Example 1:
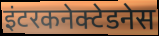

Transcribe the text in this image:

इंटरकनेक्टेडनेस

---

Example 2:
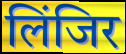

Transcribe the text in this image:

लिंजिर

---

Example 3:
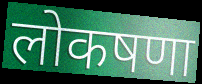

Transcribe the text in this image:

लोकषणा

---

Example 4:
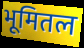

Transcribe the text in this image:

भूमितल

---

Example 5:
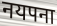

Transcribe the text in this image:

नयपना